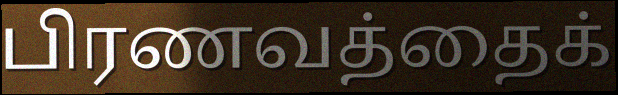
பிரணவத்தைக்